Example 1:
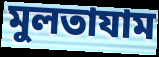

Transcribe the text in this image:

মুলতাযাম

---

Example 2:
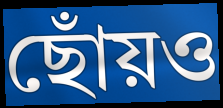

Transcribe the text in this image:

ছোঁয়ও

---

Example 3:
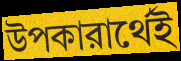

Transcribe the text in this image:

উপকারার্থেই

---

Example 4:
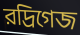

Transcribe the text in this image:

রদ্রিগেজ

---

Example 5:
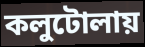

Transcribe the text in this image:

কলুটোলায়